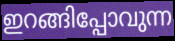
ഇറങ്ങിപ്പോവുന്ന